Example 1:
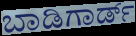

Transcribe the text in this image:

ಬಾಡಿಗಾರ್ಡ್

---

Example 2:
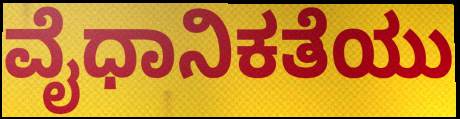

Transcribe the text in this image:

ವೈಧಾನಿಕತೆಯು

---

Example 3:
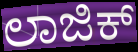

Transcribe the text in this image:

ಲಾಜಿಕ್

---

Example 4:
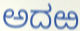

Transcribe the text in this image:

ಅದಱ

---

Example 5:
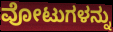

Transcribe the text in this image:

ವೋಟುಗಳನ್ನು